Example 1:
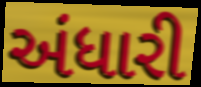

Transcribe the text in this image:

અંધારી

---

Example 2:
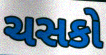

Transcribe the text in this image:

ચસકો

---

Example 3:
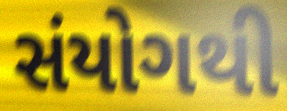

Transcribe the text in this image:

સંયોગથી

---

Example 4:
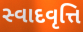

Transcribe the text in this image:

સ્વાદવૃત્તિ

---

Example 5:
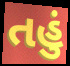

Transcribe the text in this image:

તહું